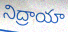
నిద్రాయా